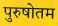
पुरुषोतम